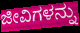
ಜೀವಿಗಳನ್ನು